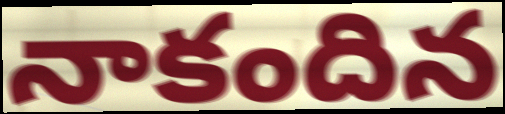
నాకందిన